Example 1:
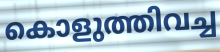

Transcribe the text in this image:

കൊളുത്തിവച്ച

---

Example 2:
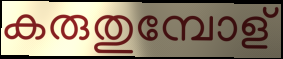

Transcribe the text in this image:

കരുതുമ്പോള്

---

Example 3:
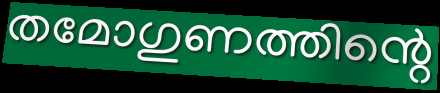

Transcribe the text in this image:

തമോഗുണത്തിന്റെ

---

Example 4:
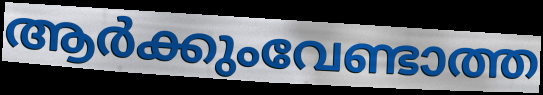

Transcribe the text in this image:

ആർക്കുംവേണ്ടാത്ത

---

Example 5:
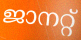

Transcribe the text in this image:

ജാനറ്റ്